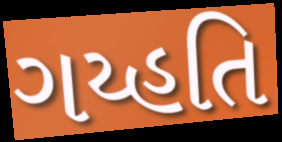
ગય્હતિ